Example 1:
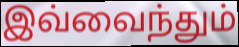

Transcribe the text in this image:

இவ்வைந்தும்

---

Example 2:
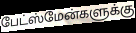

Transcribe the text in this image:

பேட்ஸ்மேன்களுக்கு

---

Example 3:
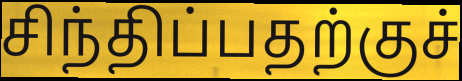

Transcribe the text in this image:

சிந்திப்பதற்குச்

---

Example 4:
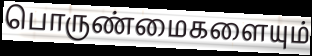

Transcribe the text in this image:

பொருண்மைகளையும்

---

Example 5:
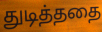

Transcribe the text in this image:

துடித்ததை